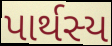
પાર્થસ્ય